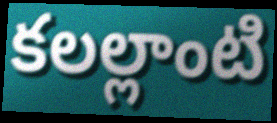
కలల్లాంటి